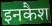
इनकैश